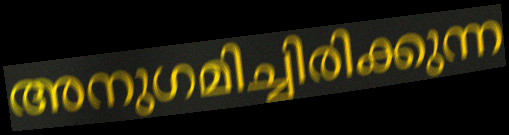
അനുഗമിച്ചിരിക്കുന്ന